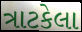
ત્રાટકેલા